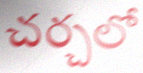
చర్చలో